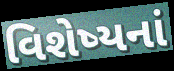
વિશેષ્યનાં